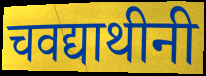
चवद्याथीनी